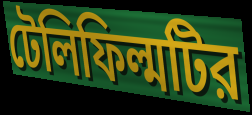
টেলিফিল্মটির